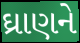
ઘ્રાણને